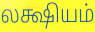
லக்ஷியம்